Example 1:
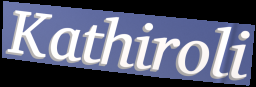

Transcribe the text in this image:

Kathiroli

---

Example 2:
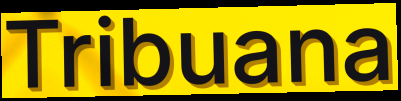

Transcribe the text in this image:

Tribuana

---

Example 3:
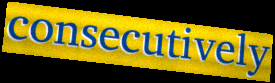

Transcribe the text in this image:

consecutively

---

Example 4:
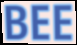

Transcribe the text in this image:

BEE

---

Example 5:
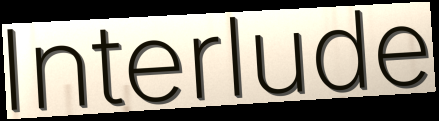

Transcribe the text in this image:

Interlude